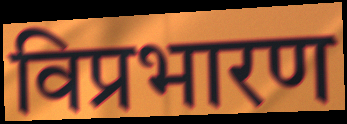
विप्रभारण